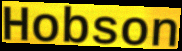
Hobson